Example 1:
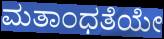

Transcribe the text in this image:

ಮತಾಂಧತೆಯೇ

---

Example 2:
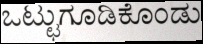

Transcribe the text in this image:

ಒಟ್ಟುಗೂಡಿಕೊಂಡು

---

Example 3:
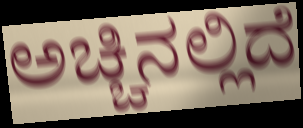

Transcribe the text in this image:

ಅಚ್ಚಿನಲ್ಲಿದೆ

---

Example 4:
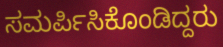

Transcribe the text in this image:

ಸಮರ್ಪಿಸಿಕೊಂಡಿದ್ದರು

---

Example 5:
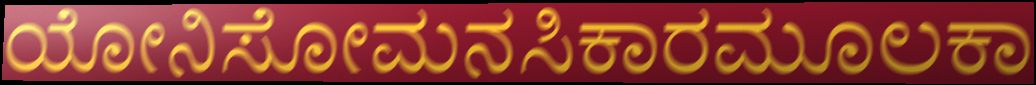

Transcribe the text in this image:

ಯೋನಿಸೋಮನಸಿಕಾರಮೂಲಕಾ